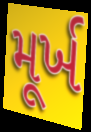
મૂર્ખ